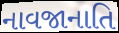
નાવજાનાતિ